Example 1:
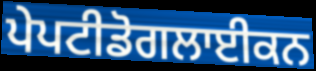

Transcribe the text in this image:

ਪੇਪਟੀਡੋਗਲਾਈਕਨ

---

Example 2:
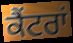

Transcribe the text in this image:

ਕੈਂਟਰਾਂ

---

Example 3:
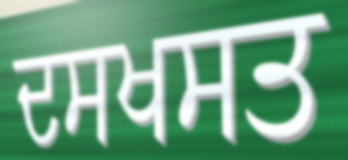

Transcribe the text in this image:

ਦਸਖਸਤ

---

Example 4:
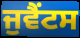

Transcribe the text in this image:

ਜੁਵੈਂਟਸ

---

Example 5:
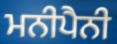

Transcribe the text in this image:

ਮਨੀਪੈਨੀ